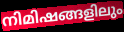
നിമിഷങ്ങളിലും